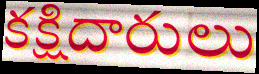
కక్షిదారులు